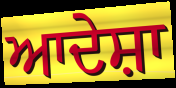
ਆਦੇਸ਼ਾ